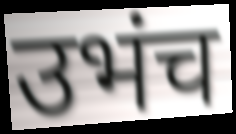
उभंच